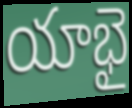
యాభై